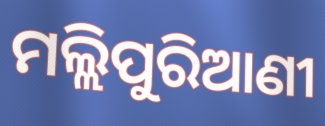
ମଲ୍ଲିପୁରିଆଣୀ